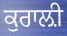
ਕੁਰਾਲ਼ੀ